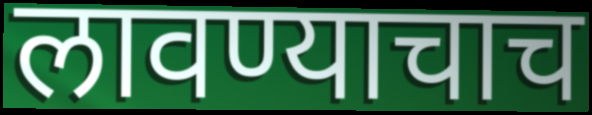
लावण्याचाच